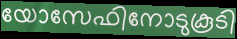
യോസേഫിനോടുകൂടി